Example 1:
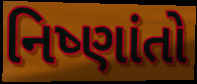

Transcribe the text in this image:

નિષ્ણાંતો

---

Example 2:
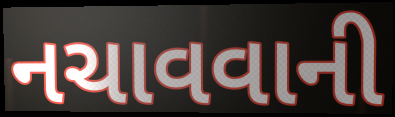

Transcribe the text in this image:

નચાવવાની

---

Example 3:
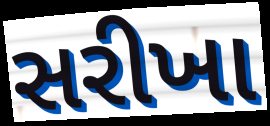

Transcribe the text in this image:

સરીખા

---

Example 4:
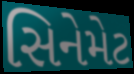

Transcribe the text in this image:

સિનેમેટ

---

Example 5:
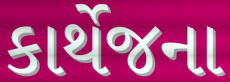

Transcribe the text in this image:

કાર્થેજના